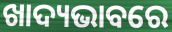
ଖାଦ୍ୟଭାବରେ